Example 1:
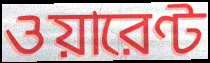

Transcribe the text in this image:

ওয়ারেণ্ট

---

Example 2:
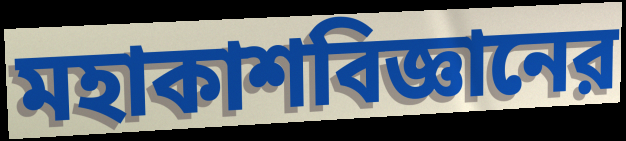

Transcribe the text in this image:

মহাকাশবিজ্ঞানের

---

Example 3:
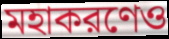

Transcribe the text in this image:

মহাকরণেও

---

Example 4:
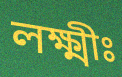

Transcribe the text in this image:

লক্ষ্মীঃ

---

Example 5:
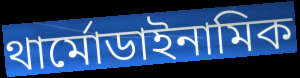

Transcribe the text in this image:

থার্মোডাইনামিক